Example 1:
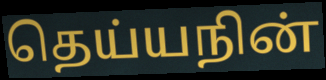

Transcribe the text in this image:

தெய்யநின்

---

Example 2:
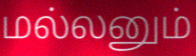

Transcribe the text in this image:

மல்லனும்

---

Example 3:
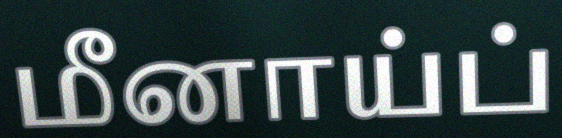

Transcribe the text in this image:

மீனாய்ப்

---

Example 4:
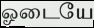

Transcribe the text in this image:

ஓடையே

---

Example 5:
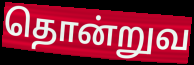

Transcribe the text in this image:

தொன்றுவ